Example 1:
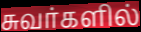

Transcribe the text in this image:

சுவர்களில்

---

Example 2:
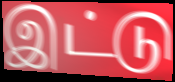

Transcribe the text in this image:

இட்டு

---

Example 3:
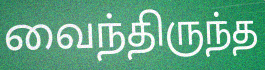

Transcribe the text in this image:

வைந்திருந்த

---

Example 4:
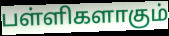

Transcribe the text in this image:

பள்ளிகளாகும்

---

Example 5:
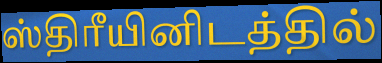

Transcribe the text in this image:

ஸ்திரீயினிடத்தில்